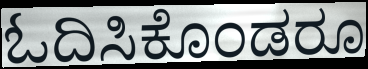
ಓದಿಸಿಕೊಂಡರೂ